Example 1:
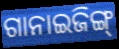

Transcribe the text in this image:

ଗାନାଇଜିଙ୍ଗ୍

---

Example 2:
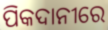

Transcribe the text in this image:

ପିକଦାନୀରେ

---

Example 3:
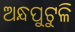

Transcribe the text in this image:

ଅନ୍ଧପୁଟୁଳି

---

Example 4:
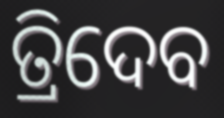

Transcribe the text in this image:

ତ୍ରିଦେବ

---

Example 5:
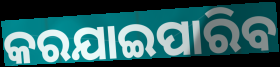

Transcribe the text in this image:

କରଯାଇପାରିବ